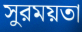
সুরময়তা